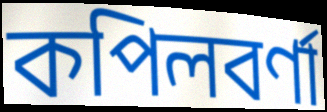
কপিলবর্ণা